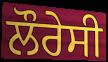
ਲੌਰੇਸੀ